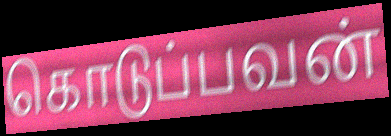
கொடுப்பவன்